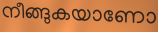
നീങ്ങുകയാണോ